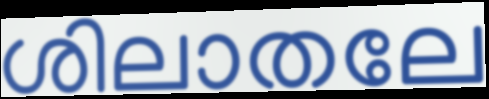
ശിലാതലേ